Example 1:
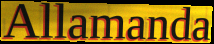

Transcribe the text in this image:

Allamanda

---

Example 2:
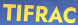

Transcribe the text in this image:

TIFRAC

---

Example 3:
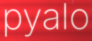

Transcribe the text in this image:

pyalo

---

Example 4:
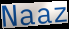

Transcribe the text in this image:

Naaz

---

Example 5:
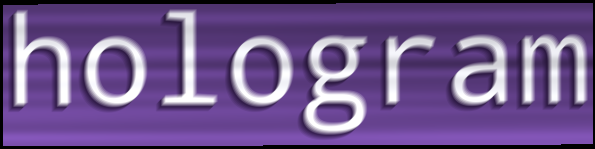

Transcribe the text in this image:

hologram